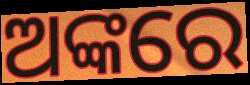
ଅଙ୍କରେ